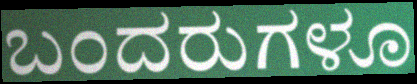
ಬಂದರುಗಳೂ